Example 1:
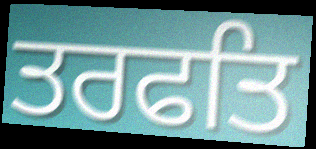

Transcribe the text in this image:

ਤਰਫਤਿ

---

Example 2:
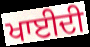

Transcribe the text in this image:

ਖਾਈਦੀ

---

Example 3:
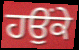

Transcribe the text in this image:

ਹਉਂਕੇ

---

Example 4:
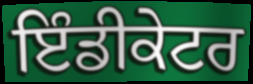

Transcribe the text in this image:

ਇੰਡੀਕੇਟਰ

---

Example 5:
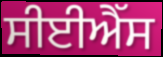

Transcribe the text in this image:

ਸੀਈਐੱਸ